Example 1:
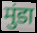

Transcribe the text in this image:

मुंडा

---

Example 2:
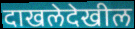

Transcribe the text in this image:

दाखलेदेखील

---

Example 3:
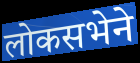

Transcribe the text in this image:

लोकसभेने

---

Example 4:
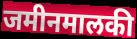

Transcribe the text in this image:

जमीनमालकी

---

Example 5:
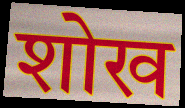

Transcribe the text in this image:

शोख